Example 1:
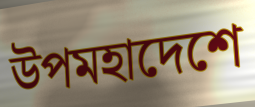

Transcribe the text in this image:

উপমহাদেশে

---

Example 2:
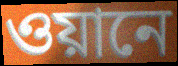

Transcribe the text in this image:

ওয়ানে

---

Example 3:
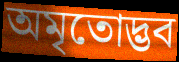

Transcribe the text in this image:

অমৃতোদ্ভব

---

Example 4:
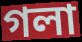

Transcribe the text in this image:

গলা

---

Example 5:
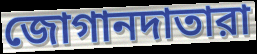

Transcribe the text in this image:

জোগানদাতারা